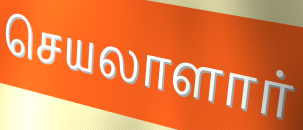
செயலாளார்